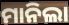
ମାନିଲା